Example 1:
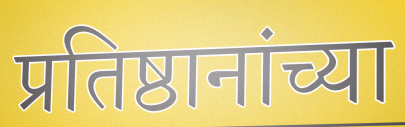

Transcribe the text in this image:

प्रतिष्ठानांच्या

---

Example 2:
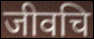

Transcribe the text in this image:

जीवचि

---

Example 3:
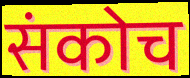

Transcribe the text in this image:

संकोच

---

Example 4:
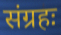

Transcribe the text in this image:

संग्रहः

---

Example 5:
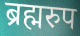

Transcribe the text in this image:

ब्रह्मरुप